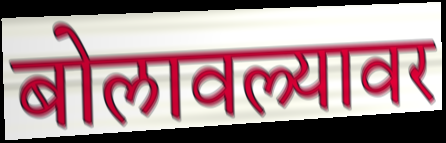
बोलावल्यावर